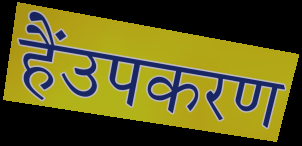
हैंउपकरण